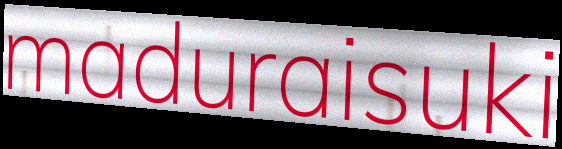
maduraisuki